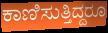
ಕಾಣಿಸುತ್ತಿದ್ದರೂ